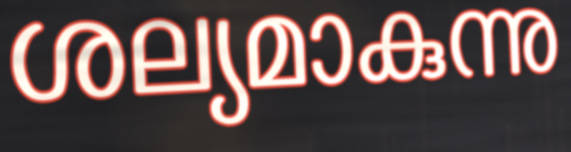
ശല്യമാകുന്നു